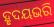
ହୃଦୟଭରି